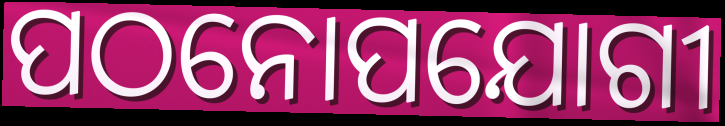
ପଠନୋପଯୋଗୀ